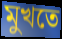
মুখতে